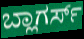
ಬ್ಲಾಗರ್ಸ್